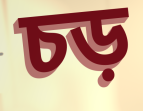
চড়